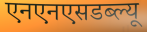
एनएनएसडब्ल्यू